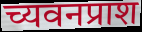
च्‍यवनप्राश